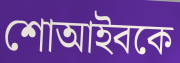
শোআইবকে